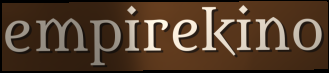
empirekino